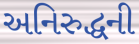
અનિરુદ્ધની